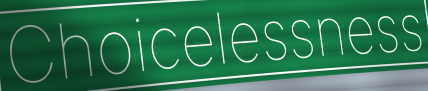
Choicelessness